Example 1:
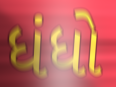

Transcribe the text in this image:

ધંધો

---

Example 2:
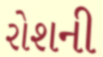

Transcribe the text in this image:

રોશની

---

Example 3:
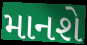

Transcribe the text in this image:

માનશે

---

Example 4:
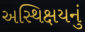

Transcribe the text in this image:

અસ્થિક્ષયનું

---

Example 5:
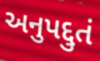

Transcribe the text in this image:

અનુપદ્દુતં